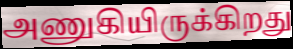
அணுகியிருக்கிறது